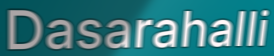
Dasarahalli